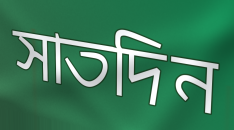
সাতদিন